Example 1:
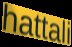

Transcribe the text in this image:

hattali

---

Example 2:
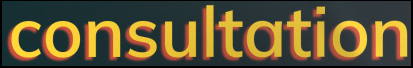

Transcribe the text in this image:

consultation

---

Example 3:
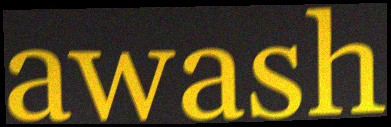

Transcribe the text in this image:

awash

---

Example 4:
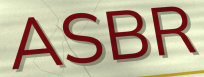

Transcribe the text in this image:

ASBR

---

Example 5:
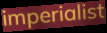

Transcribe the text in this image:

imperialist